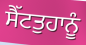
ਸੈੱਟਤੁਹਾਨੂੰ